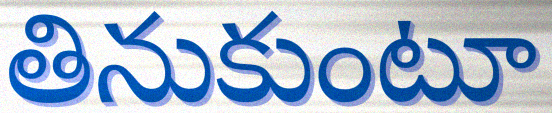
తినుకుంటూ